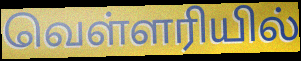
வெள்ளரியில்